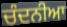
ਚੰਦਨੀਆ